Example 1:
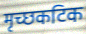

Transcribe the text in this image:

मृच्छकटिक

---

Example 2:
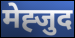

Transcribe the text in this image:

मेह्जुद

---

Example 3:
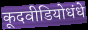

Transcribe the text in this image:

कूदवीडियोधंधे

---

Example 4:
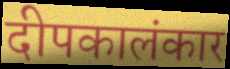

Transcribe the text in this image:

दीपकालंकार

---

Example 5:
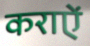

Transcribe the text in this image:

कराऐं